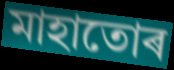
মাহাতোৰ